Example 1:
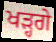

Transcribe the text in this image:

ਖੜ੍ਹਗੇ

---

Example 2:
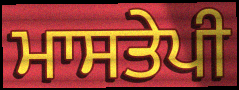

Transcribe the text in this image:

ਮਾਸਤੇਪੀ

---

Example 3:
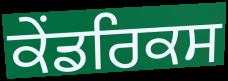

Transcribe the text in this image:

ਕੇਂਡਰਿਕਸ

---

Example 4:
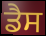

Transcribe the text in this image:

ਡੈਸ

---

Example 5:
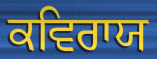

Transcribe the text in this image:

ਕਵਿਰਾਯ